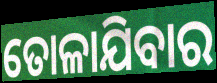
ତୋଳାଯିବାର